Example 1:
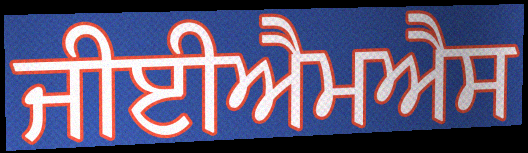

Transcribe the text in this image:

ਜੀਈਐਮਐਸ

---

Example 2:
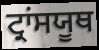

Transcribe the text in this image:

ਟ੍ਰਾਂਸਯੂਥ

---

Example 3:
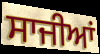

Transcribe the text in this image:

ਸਾਜੀਆਂ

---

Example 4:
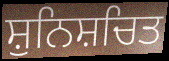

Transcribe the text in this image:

ਸ਼ੁਨਿਸ਼ਚਿਤ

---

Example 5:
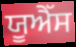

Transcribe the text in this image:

ਯੂਐੱਸ